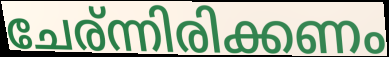
ചേര്ന്നിരിക്കണം